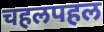
चहलपहल